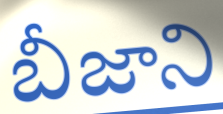
బీజాని